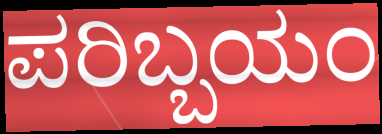
ಪರಿಬ್ಬಯಂ